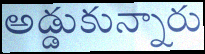
అడ్డుకున్నారు